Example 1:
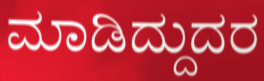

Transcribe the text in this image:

ಮಾಡಿದ್ದುದರ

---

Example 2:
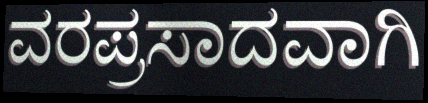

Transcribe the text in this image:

ವರಪ್ರಸಾದವಾಗಿ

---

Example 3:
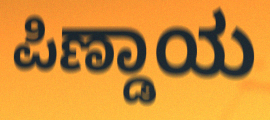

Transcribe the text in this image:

ಪಿಣ್ಡಾಯ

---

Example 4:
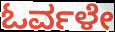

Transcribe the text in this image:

ಓರ್ವಳೇ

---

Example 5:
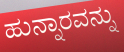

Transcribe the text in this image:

ಹುನ್ನಾರವನ್ನು